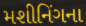
મશીનિંગના